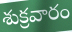
శుక్రవారం